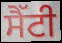
ਸੈੱਟੀ